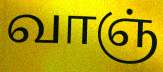
வாஞ்